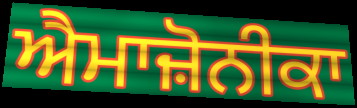
ਐਮਾਜ਼ੋਨੀਕਾ